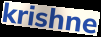
krishne